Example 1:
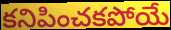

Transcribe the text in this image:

కనిపించకపోయే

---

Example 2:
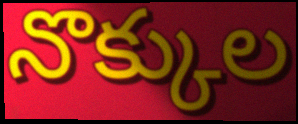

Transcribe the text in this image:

నొక్కుల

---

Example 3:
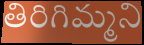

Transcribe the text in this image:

తిరిగిమ్మని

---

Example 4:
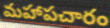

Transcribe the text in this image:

మహాపచారం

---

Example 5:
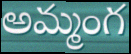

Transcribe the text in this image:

అమ్మంగ